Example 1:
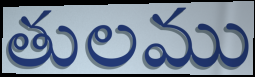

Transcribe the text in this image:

తులము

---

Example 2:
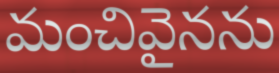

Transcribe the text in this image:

మంచివైనను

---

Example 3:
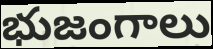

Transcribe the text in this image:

భుజంగాలు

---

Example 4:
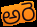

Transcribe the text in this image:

అరె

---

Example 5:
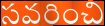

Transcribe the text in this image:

సవరించి